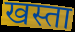
खस्ता